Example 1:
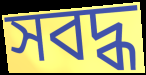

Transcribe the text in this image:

সবদ্ধ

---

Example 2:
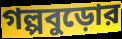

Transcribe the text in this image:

গল্পবুড়োর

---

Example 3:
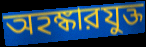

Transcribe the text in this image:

অহঙ্কারযুক্ত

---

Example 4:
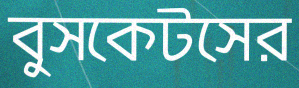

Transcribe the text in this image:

বুসকেটসের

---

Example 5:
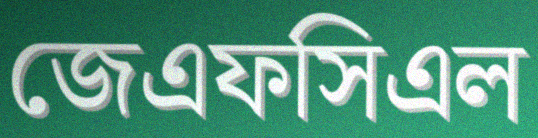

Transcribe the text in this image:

জেএফসিএল